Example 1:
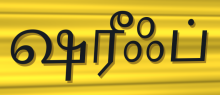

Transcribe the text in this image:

ஷரீஃப்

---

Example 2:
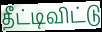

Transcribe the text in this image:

தீட்டிவிட்டு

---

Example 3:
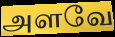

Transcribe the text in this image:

அளவே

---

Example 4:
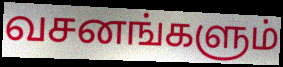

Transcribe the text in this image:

வசனங்களும்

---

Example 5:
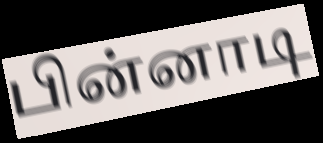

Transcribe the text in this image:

பின்னாடி